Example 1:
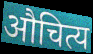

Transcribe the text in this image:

औचित्य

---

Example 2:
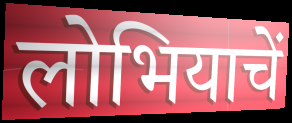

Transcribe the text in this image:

लोभियाचें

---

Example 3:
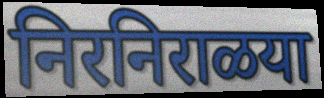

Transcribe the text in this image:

निरनिराळया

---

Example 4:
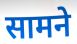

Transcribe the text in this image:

सामने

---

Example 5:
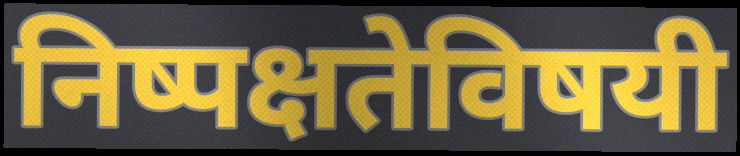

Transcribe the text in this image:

निष्पक्षतेविषयी